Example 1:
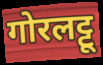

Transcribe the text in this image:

गोरलट्टू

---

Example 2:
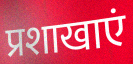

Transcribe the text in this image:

प्रशाखाएं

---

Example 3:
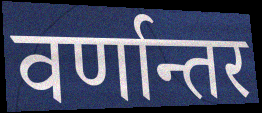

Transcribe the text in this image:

वर्णान्तर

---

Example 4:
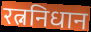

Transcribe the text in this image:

रत्ननिधान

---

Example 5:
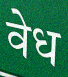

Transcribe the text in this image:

वेध